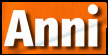
Anni